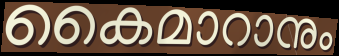
കൈമാറാനും